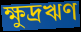
ক্ষুদ্রঋণ